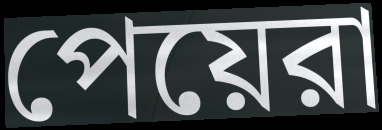
পেয়েরা